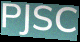
PJSC